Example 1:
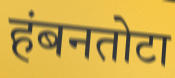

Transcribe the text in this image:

हंबनतोटा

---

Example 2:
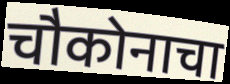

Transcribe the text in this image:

चौकोनाचा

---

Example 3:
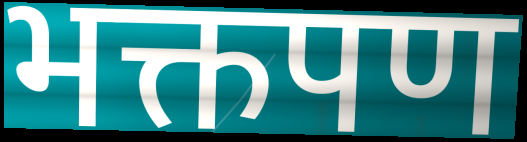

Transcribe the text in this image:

भक्तपण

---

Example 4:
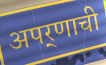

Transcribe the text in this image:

अपर्णाची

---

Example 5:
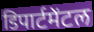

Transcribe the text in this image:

डिपार्टमेंटल